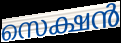
സെക്ഷൻ